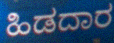
ಹಿಡದಾರ